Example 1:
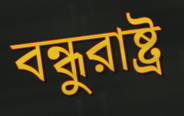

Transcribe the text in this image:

বন্ধুরাষ্ট্র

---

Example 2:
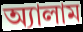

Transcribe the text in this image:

অ্যালাম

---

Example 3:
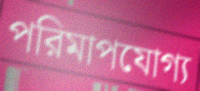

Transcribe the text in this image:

পরিমাপযোগ্য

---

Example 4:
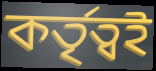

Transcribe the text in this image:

কর্তৃত্বই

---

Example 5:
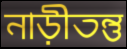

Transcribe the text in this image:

নাড়ীতন্তু